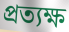
প্ৰত্যক্ষ